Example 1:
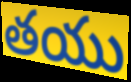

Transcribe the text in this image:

తయు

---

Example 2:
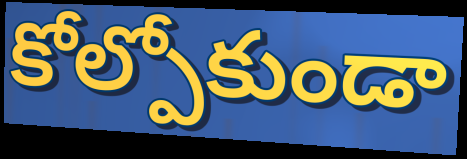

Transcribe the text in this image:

కోల్పోకుండా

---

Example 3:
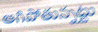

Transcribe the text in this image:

ఆగిపోతున్నట్టు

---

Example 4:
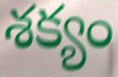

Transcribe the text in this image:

శక్యం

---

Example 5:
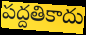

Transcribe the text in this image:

పద్దతికాదు